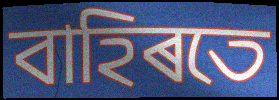
বাহিৰতে